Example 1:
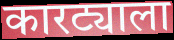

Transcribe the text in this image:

कारट्याला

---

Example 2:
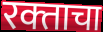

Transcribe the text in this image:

रक्‍ताचा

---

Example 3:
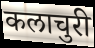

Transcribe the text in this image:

कलाचुरी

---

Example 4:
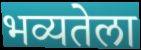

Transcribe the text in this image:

भव्यतेला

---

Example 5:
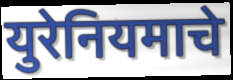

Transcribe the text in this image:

युरेनियमाचे